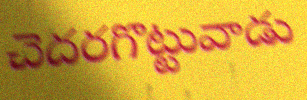
చెదరగొట్టువాడు